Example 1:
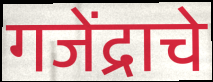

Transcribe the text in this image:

गजेंद्राचे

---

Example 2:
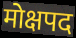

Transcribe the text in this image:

मोक्षपद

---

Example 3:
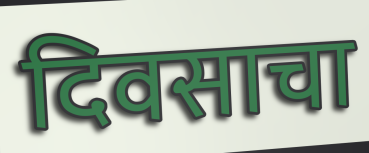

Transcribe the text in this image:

दिवसाचा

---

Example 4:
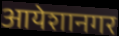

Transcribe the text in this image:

आयेशानगर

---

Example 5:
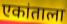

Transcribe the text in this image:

एकांताला